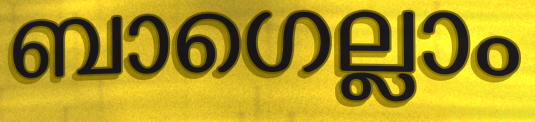
ബാഗെല്ലാം